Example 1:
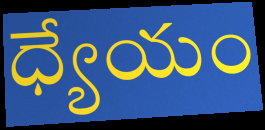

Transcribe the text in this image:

ధ్యేయం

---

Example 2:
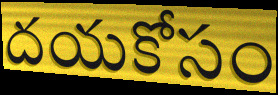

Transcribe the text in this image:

దయకోసం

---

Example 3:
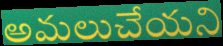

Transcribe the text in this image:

అమలుచేయని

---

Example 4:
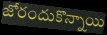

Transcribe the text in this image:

జోరందుకొన్నాయి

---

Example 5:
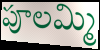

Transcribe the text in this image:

పూలమ్మి